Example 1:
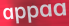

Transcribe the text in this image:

appaa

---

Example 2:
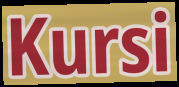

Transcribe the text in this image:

Kursi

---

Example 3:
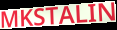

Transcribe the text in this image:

MKSTALIN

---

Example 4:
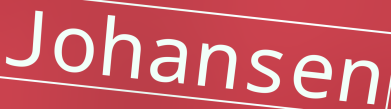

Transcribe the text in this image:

Johansen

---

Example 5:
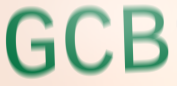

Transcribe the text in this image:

GCB